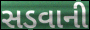
સડવાની